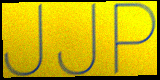
JJP